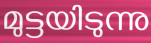
മുട്ടയിടുന്നു